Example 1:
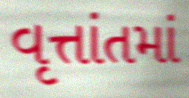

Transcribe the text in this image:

વૃત્તાંતમાં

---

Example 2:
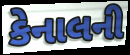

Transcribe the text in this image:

કેનાલની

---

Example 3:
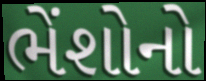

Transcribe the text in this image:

ભેંશોનો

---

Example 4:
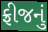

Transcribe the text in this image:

ફ્રીજનું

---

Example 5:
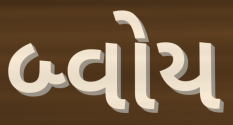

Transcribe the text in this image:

બ્વોય